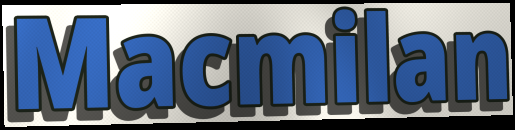
Macmilan